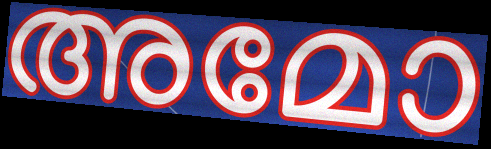
അമോ